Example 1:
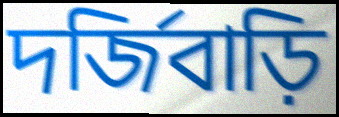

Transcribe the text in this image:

দর্জিবাড়ি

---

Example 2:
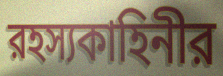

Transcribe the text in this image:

রহস্যকাহিনীর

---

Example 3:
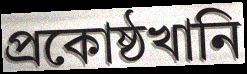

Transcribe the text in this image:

প্রকোষ্ঠখানি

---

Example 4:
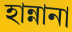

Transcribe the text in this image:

হান্নানা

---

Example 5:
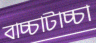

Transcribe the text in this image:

বাচ্চাটাচ্চা